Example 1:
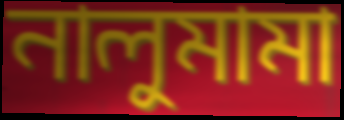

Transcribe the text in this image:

নালুমামা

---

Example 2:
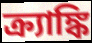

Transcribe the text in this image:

ক্র্যাঙ্কি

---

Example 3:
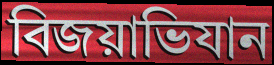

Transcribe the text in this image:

বিজয়াভিযান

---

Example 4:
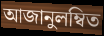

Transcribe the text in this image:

আজানুলম্বিত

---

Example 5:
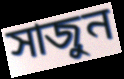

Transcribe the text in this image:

সাজুন